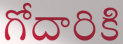
గోదారికి